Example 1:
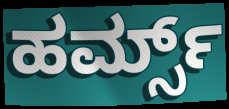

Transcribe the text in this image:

ಹರ್ಮ್ಸ್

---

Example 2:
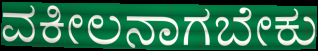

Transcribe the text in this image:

ವಕೀಲನಾಗಬೇಕು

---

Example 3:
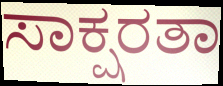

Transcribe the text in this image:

ಸಾಕ್ಷರತಾ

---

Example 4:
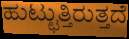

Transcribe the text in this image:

ಹುಟ್ಟುತ್ತಿರುತ್ತದೆ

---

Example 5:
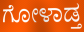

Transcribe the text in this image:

ಗೋಳಾಡ್ತ